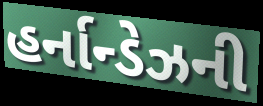
હર્નાન્ડેઝની